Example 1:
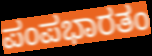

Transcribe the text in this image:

ಪಂಪಭಾರತಂ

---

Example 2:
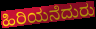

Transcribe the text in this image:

ಹಿರಿಯನೆದುರು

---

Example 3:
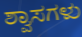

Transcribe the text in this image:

ಶ್ವಾಸಗಳು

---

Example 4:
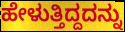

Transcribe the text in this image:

ಹೇಳುತ್ತಿದ್ದದನ್ನು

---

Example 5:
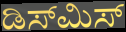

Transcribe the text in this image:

ಡಿಸ್‌ಮಿಸ್